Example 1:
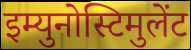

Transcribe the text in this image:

इम्युनोस्टिमुलेंट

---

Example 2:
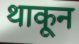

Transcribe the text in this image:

थाकून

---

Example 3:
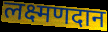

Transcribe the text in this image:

लक्ष्मणदान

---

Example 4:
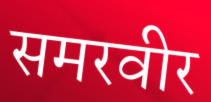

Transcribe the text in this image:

समरवीर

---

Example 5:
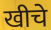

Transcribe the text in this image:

खीचे